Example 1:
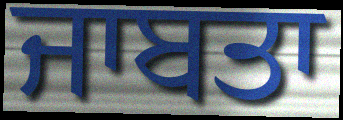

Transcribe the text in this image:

ਜਾਬਤਾ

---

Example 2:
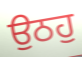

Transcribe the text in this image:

ਉਠਹੁ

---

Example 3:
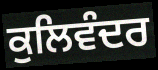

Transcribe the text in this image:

ਕੁਲਿਵੰਦਰ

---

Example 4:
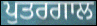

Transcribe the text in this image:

ਪੁਤਰਗਾਲ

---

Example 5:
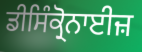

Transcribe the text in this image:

ਡੀਸਿੰਕ੍ਰੋਨਾਈਜ਼